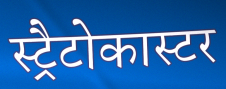
स्ट्रैटोकास्टर